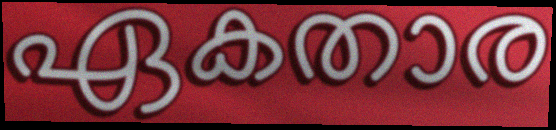
ഏകതാര